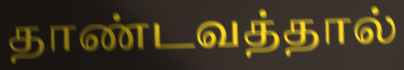
தாண்டவத்தால்